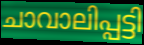
ചാവാലിപ്പട്ടി